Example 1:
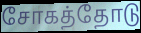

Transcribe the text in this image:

சோகத்தோடு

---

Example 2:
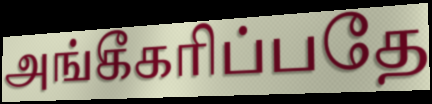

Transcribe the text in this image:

அங்கீகரிப்பதே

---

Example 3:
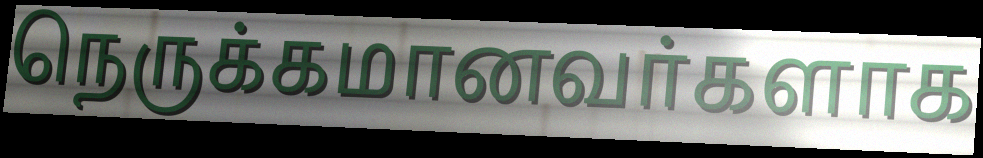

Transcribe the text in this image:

நெருக்கமானவர்களாக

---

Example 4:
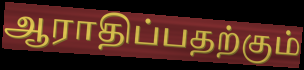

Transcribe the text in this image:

ஆராதிப்பதற்கும்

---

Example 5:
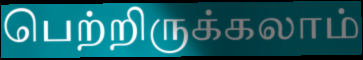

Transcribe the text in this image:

பெற்றிருக்கலாம்